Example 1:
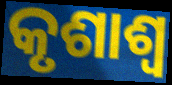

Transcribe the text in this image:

କୃଶାଶ୍ୱ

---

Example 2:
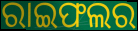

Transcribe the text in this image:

ରାଇଫଲର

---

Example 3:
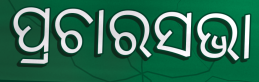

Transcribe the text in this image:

ପ୍ରଚାରସଭା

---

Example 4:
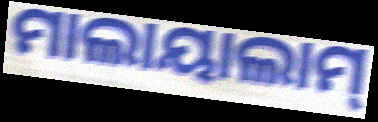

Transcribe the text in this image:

ମାଲାୟାଲାମ୍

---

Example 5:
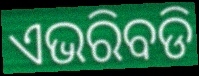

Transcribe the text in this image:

ଏଭରିବଡି